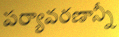
పర్యావరణాన్నీ